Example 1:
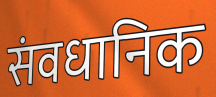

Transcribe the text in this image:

संवधानिक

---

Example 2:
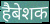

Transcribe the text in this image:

हैबेशक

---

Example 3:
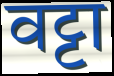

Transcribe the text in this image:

वट्टा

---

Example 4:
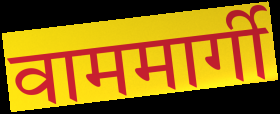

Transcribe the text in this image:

वाममार्गी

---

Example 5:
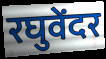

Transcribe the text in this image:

रघुवेंदर